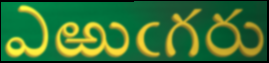
ఎఱుఁగరు